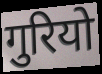
गुरियो